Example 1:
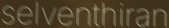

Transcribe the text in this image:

selventhiran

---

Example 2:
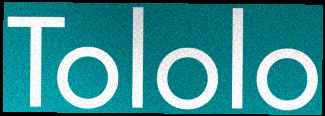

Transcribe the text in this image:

Tololo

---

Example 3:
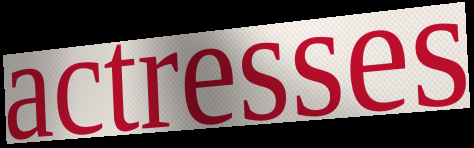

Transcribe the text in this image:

actresses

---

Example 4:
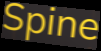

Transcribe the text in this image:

Spine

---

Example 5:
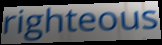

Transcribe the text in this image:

righteous